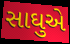
સાઘુએ